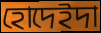
হোদেইদা